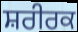
ਸ਼ਰੀਰਕ